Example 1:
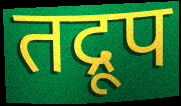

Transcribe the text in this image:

तद्रूप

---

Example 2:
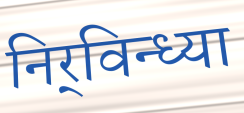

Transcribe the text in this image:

निर्विन्ध्या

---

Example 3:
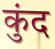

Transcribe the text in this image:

कुंद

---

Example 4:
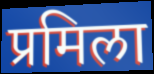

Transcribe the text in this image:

प्रमिला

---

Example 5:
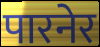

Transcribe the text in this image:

पारनेर